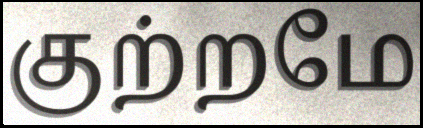
குற்றமே